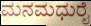
ಮನಮಧುರೈ